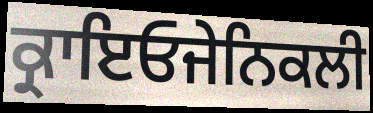
ਕ੍ਰਾਇਓਜੇਨਿਕਲੀ